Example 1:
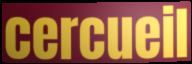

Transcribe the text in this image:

cercueil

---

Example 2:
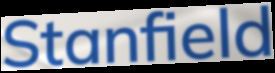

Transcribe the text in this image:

Stanfield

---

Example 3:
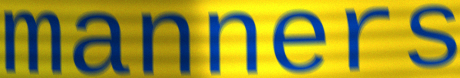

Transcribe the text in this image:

manners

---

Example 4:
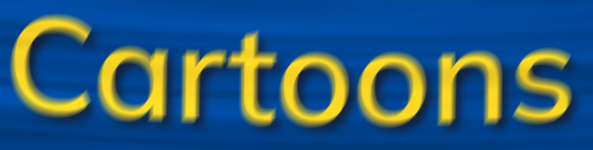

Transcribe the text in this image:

Cartoons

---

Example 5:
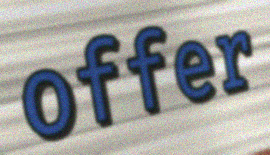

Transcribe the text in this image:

offer